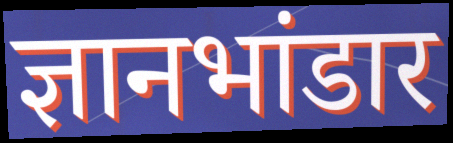
ज्ञानभांडार